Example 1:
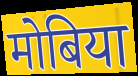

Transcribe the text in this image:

मोबिया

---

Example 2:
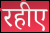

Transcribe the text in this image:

रहीए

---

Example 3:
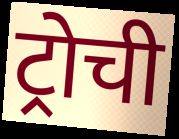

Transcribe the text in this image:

ट्रोची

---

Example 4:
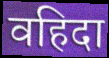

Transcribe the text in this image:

वहिदा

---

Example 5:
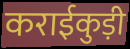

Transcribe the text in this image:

कराईकुड़ी